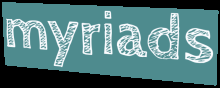
myriads